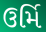
ઉર્મિ